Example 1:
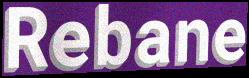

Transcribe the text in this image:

Rebane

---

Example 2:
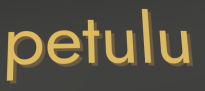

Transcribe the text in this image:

petulu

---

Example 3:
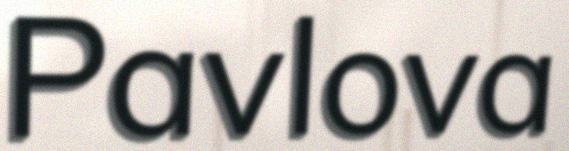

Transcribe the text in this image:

Pavlova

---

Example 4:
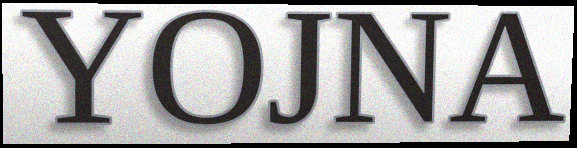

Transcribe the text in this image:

YOJNA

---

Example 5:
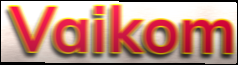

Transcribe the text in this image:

Vaikom